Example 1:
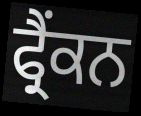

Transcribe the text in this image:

ਫ੍ਰੈਂਕਨ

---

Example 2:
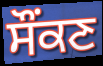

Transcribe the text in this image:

ਸੌਂਕਣ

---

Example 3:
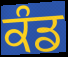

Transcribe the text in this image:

ਕੰਡ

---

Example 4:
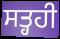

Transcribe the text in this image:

ਸਤ੍ਹਹੀ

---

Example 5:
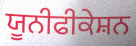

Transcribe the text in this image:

ਯੂਨੀਫੀਕੇਸ਼ਨ